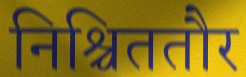
निश्चिततौर